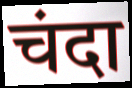
चंदा